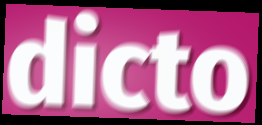
dicto